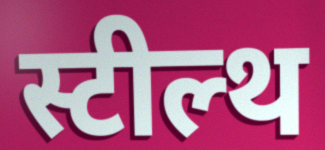
स्टील्थ